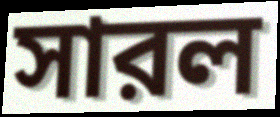
সারল